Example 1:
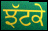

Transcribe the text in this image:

ਝੱਟਕੇ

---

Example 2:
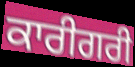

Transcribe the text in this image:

ਕਾਰੀਗਰੀ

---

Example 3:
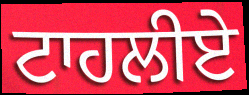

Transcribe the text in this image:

ਟਾਹਲੀਏ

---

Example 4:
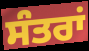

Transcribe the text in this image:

ਸੰਤਰਾਂ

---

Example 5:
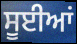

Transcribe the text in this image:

ਸੂਈਆਂ